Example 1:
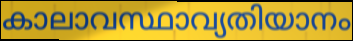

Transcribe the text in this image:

കാലാവസ്ഥാവ്യതിയാനം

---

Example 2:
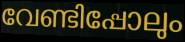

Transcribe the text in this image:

വേണ്ടിപ്പോലും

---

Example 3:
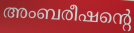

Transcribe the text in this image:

അംബരീഷന്റെ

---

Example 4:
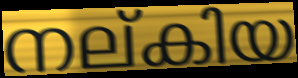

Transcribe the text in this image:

നല്‌കിയ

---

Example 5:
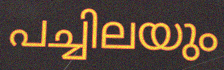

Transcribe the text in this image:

പച്ചിലയും